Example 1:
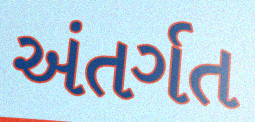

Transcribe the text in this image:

અંતર્ગત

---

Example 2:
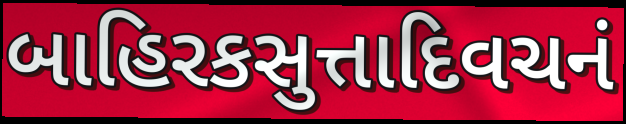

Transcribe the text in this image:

બાહિરકસુત્તાદિવચનં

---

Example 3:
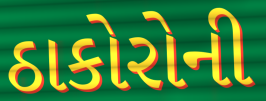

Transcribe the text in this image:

ઠાકોરોની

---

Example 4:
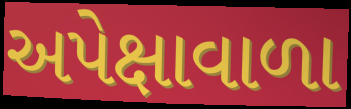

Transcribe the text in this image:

અપેક્ષાવાળા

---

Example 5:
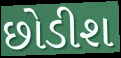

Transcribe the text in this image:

છોડીશ